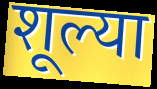
शूल्या